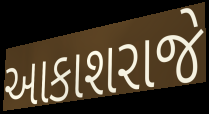
આકાશરાજે